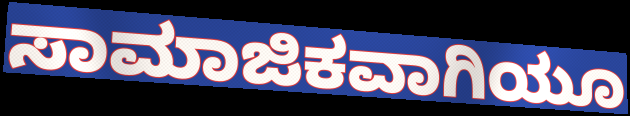
ಸಾಮಾಜಿಕವಾಗಿಯೂ